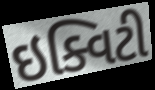
ઇક્વિટી